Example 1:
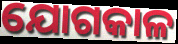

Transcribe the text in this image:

ଯୋଗକାଳ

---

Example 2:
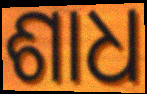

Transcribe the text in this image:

ଶାଧ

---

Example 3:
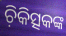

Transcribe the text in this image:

ଚ଼ିକିତ୍ସକଙ୍କ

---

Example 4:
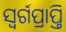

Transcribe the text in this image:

ସ୍ଵର୍ଗପ୍ରାପ୍ତି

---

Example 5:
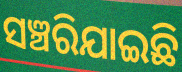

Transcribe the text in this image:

ସଞ୍ଚରିଯାଇଛି